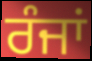
ਰੰਜਾਂ